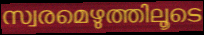
സ്വരമെഴുത്തിലൂടെ